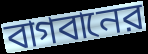
বাগবানের